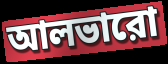
আলভারো